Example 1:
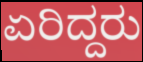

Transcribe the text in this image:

ಏರಿದ್ದರು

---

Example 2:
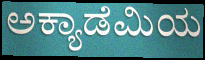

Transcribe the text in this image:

ಅಕ್ಯಾಡೆಮಿಯ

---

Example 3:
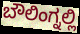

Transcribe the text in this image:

ಬೌಲಿಂಗ್ನಲ್ಲಿ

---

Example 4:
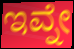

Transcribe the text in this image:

ಇವ್ನೇ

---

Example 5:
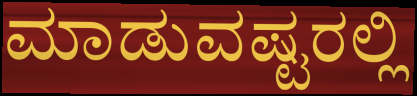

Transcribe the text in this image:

ಮಾಡುವಷ್ಟರಲ್ಲಿ